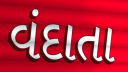
વંદાતા